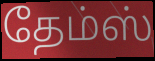
தேம்ஸ்